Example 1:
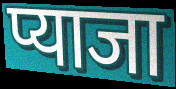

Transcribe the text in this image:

प्याजा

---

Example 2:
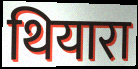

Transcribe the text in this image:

थियारा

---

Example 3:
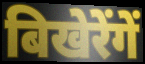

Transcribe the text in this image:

बिखेरेंगें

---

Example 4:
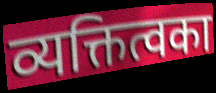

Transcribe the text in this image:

व्यक्तित्वका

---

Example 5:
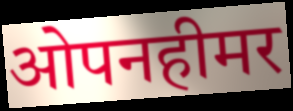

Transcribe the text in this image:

ओपनहीमर